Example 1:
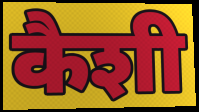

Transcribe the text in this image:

कैशी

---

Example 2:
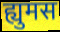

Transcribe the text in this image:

ह्युमस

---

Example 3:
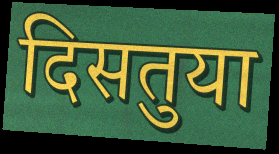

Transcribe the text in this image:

दिसतुया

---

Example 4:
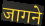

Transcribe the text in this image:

जागने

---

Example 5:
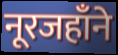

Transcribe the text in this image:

नूरजहाँने